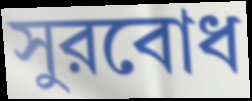
সুরবোধ